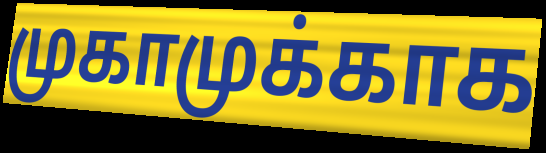
முகாமுக்காக